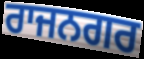
ਰਾਜਨਗਰ